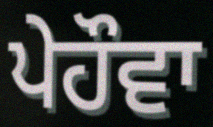
ਪੇਹੌਵਾ